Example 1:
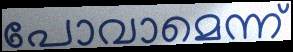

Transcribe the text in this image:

പോവാമെന്ന്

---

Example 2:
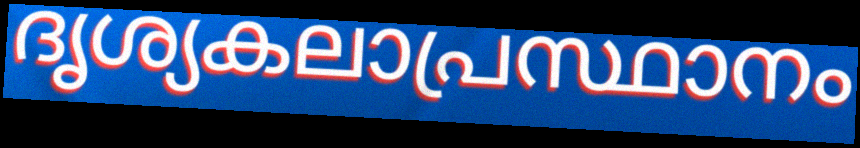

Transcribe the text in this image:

ദൃശ്യകലാപ്രസ്ഥാനം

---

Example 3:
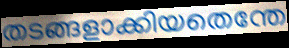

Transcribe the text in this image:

തടങ്ങളാക്കിയതെന്തേ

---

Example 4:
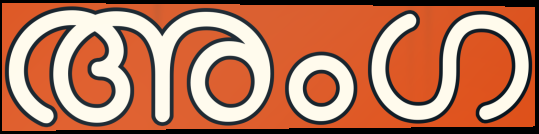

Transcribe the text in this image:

അംഗ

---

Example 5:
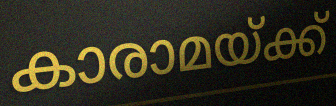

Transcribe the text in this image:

കാരാമയ്ക്ക്